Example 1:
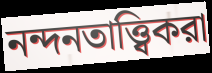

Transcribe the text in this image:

নন্দনতাত্ত্বিকরা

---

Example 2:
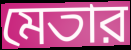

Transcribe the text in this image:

মেতার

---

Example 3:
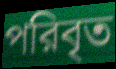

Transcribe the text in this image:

পরিবৃত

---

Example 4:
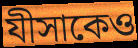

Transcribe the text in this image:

যীসাকেও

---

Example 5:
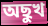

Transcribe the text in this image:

অছুখ